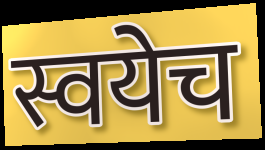
स्वयेच